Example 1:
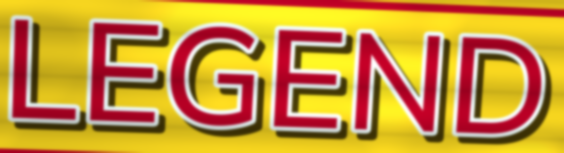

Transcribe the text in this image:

LEGEND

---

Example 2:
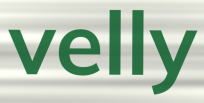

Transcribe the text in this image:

velly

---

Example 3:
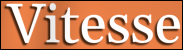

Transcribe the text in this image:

Vitesse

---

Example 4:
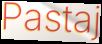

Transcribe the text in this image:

Pastaj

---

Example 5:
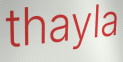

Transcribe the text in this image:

thayla